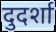
दुदर्शा